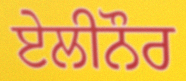
ਏਲੀਨੌਰ